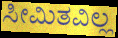
ಸೀಮಿತವಿಲ್ಲ